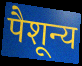
पैशून्य